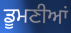
ਡੂਮਣੀਆਂ